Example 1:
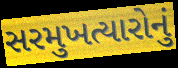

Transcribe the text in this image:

સરમુખત્યારોનું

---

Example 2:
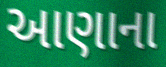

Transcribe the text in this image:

આણાના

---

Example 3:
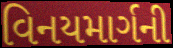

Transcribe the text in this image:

વિનયમાર્ગની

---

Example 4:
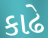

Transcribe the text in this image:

કાઢે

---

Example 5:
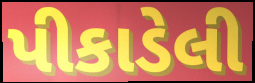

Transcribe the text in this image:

પીકાડેલી